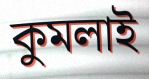
কুমলাই